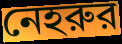
নেহরুর